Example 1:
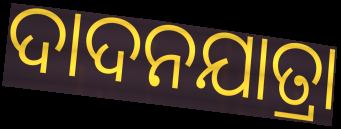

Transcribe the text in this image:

ଦାଦନଯାତ୍ରା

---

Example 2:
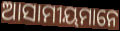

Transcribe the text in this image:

ଆସାମୀୟମାନେ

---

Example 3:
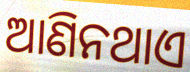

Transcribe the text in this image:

ଆଣିନଥାଏ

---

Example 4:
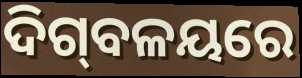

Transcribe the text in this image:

ଦିଗ୍‍ବଳୟରେ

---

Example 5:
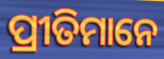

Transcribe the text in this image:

ପ୍ରୀତିମାନେ